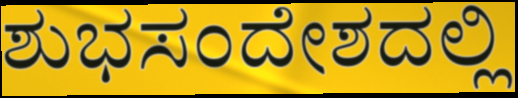
ಶುಭಸಂದೇಶದಲ್ಲಿ